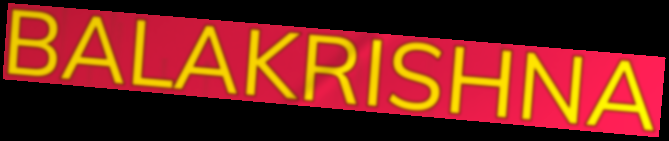
BALAKRISHNA